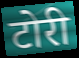
टोरी